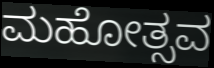
ಮಹೋತ್ಸವ